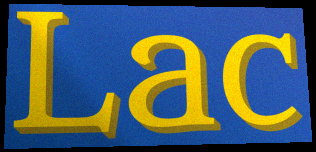
Lac